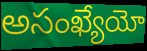
అసంఖ్యేయో